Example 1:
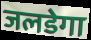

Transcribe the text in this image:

जलडेगा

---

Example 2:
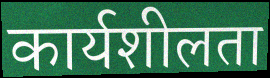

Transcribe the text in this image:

कार्यशीलता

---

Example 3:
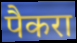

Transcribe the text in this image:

पैकरा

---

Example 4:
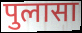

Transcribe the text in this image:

पुलासा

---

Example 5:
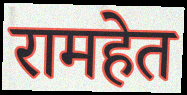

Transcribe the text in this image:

रामहेत